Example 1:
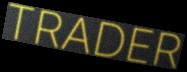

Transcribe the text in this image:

TRADER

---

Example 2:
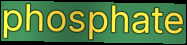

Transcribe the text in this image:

phosphate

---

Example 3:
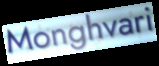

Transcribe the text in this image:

Monghvari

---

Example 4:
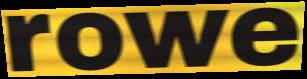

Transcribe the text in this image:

rowe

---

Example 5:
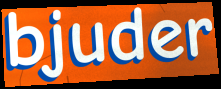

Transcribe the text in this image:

bjuder